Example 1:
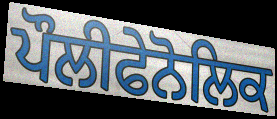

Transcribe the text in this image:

ਪੌਲੀਫੇਨੋਲਿਕ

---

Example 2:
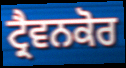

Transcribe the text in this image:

ਟ੍ਰੈਵਨਕੋਰ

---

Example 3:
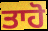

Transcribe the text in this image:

ਤਾਹੋ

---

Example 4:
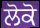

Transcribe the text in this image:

ਲੋਕੋ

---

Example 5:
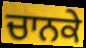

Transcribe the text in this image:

ਚਾਨਕੇ